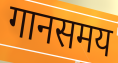
गानसमय